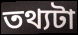
তথ্যটা